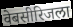
वेबसीरिजला